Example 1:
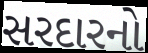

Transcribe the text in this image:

સરદારનો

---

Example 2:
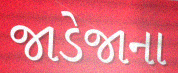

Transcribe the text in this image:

જાડેજાના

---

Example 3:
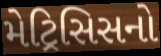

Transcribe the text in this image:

મેટ્રિસિસનો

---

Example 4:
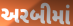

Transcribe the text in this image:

અરબીમાં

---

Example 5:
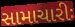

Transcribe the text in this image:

સામાચારીઃ